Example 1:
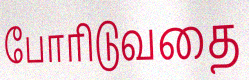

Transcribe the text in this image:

போரிடுவதை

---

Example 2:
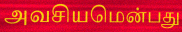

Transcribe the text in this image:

அவசியமென்பது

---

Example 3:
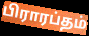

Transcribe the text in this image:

பிராரப்தம்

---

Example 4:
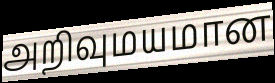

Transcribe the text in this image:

அறிவுமயமான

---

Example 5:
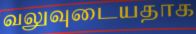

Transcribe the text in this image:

வலுவுடையதாக